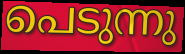
പെടുന്നു